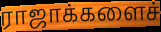
ராஜாக்களைச்